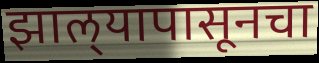
झाल्यापासूनचा